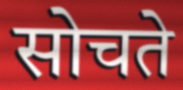
सोचते